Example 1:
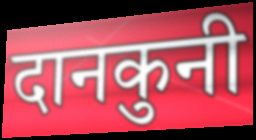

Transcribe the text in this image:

दानकुनी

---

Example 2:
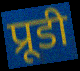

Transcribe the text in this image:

प्रूडी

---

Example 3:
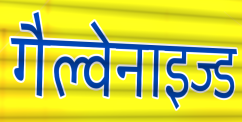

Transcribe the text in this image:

गैल्वेनाइज्ड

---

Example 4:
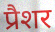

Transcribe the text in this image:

प्रैशर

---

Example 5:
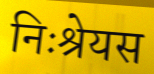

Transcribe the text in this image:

निःश्रेयस